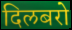
दिलबरो